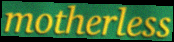
motherless